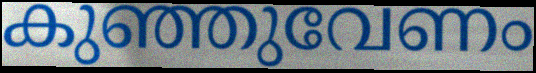
കുഞ്ഞുവേണം